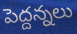
పెద్దన్నలు